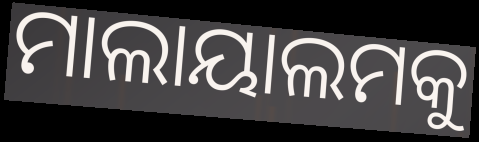
ମାଲାୟାଲମକୁ